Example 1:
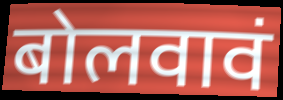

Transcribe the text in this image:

बोलवावं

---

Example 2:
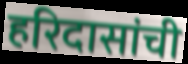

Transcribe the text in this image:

हरिदासांची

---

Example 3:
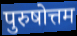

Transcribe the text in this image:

पुरुषोत्तम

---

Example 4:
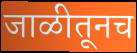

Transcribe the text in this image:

जाळीतूनच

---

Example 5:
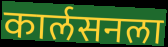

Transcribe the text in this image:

कार्लसनला